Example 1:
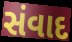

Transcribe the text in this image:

સંવાદ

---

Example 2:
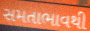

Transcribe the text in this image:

સમતાભાવથી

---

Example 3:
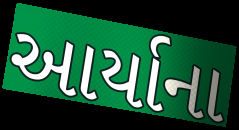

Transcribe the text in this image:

આર્યાના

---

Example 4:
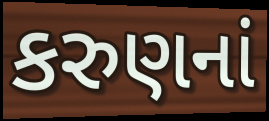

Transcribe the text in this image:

કરુણનાં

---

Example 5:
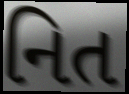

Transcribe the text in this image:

નિત